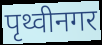
पृथ्वीनगर